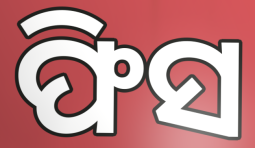
ଫିସ